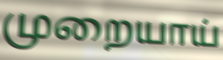
முறையாய்